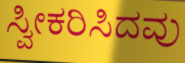
ಸ್ವೀಕರಿಸಿದವು